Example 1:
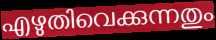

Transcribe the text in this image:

എഴുതിവെക്കുന്നതും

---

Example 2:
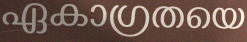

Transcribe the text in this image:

ഏകാഗ്രതയെ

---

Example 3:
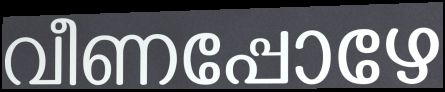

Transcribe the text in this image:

വീണപ്പോഴേ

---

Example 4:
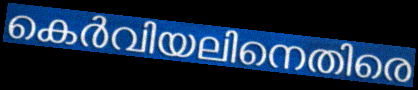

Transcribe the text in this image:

കെർവിയലിനെതിരെ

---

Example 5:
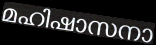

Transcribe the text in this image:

മഹിഷാസനാ